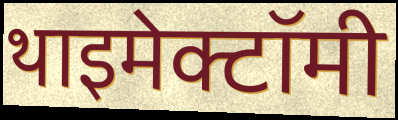
थाइमेक्टॉमी